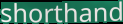
shorthand